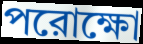
পরোক্ষো